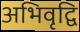
अभिवृद्वि